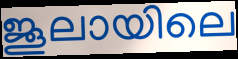
ജൂലായിലെ